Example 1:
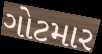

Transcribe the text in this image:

ગોટમાર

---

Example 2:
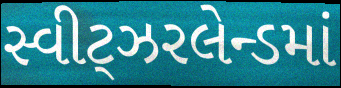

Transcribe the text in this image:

સ્વીટ્ઝરલેન્ડમાં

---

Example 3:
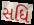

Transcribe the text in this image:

સધિ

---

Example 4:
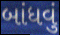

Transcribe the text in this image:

બાંધવું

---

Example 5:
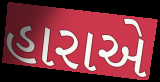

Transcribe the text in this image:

હારાએ